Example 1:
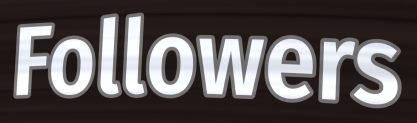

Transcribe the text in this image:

Followers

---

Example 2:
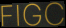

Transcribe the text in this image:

FIGC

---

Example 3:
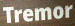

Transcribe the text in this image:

Tremor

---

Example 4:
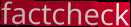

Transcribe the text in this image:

factcheck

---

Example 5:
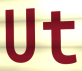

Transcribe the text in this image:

Ut